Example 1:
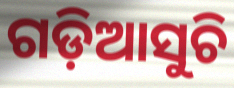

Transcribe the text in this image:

ଗଡ଼ିଆସୁଚି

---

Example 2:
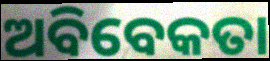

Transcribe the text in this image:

ଅବିବେକତା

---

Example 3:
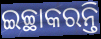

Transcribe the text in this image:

ଇଚ୍ଛାକରନ୍ତି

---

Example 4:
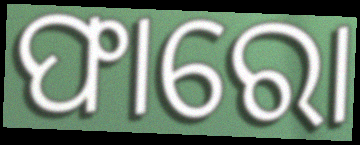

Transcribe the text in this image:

ଫାରୋ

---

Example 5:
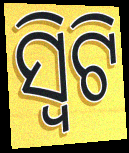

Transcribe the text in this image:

ସ୍ୱିଟି